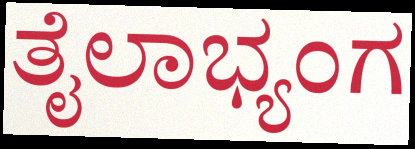
ತೈಲಾಭ್ಯಂಗ